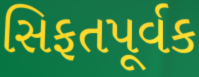
સિફતપૂર્વક